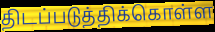
திடப்படுத்திக்கொள்ள